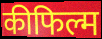
कीफिल्म